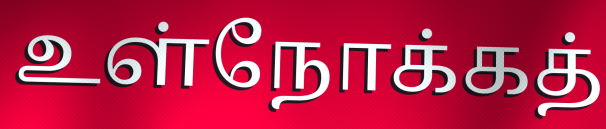
உள்நோக்கத்